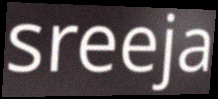
sreeja